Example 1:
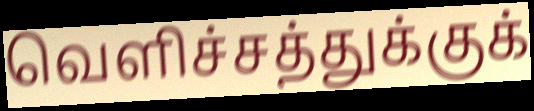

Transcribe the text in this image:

வெளிச்சத்துக்குக்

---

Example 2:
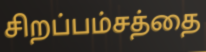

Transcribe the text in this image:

சிறப்பம்சத்தை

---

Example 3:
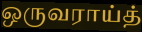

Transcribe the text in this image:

ஒருவராய்த்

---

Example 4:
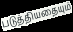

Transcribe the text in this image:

படுத்தியதையும்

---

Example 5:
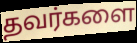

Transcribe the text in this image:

தவர்களை